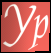
Yp